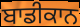
ਬਾਡੀਕਾਨ